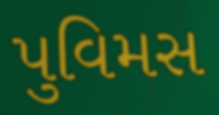
પુવિમસ